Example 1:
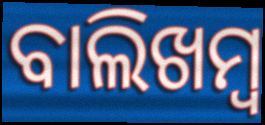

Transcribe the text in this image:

ବାଲିଖମ୍ବ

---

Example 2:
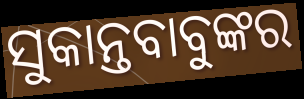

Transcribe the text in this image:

ସୁକାନ୍ତବାବୁଙ୍କର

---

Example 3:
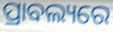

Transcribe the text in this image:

ପ୍ରାବଲ୍ୟରେ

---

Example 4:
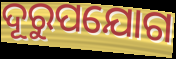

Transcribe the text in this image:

ଦୂରୁପଯୋଗ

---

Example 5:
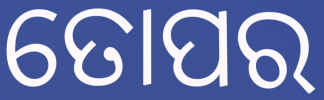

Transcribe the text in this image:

ତୋପର